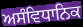
ਅਸੰਵਿਧਾਨਿਕ